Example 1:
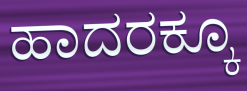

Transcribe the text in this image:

ಹಾದರಕ್ಕೂ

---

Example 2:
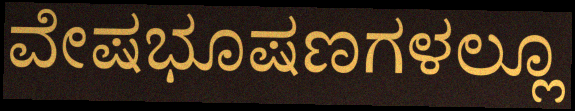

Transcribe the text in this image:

ವೇಷಭೂಷಣಗಳಲ್ಲೂ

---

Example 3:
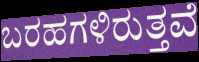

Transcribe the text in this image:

ಬರಹಗಳಿರುತ್ತವೆ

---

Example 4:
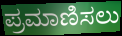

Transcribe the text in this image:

ಪ್ರಮಾಣಿಸಲು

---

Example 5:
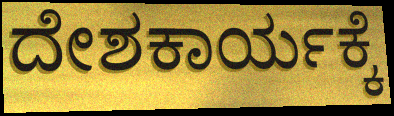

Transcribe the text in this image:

ದೇಶಕಾರ್ಯಕ್ಕೆ